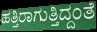
ಹತ್ತಿರಾಗುತ್ತಿದ್ದಂತೆ